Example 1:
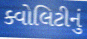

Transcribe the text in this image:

ક્વોલિટીનું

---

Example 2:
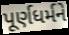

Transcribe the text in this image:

પૂર્ણધર્મને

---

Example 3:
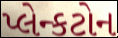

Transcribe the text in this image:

પ્લેન્કટોન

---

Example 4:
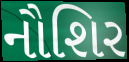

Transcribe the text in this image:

નૌશિર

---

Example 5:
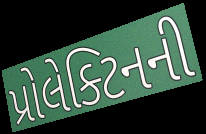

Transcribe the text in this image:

પ્રોલેક્ટિનની